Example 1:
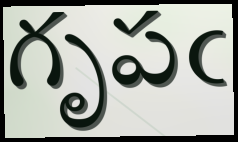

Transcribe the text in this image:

గృపఁ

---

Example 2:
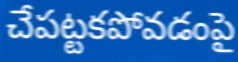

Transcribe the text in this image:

చేపట్టకపోవడంపై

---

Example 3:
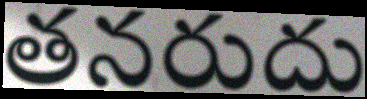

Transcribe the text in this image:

తనరుదు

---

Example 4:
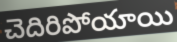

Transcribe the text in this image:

చెదిరిపోయాయి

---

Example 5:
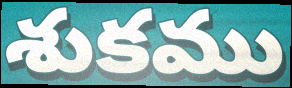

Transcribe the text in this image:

శుకము